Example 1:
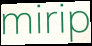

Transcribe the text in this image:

mirip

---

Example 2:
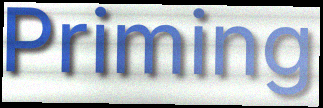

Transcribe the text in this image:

Priming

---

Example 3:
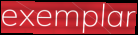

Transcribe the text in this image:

exemplar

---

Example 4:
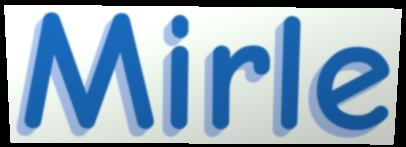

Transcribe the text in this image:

Mirle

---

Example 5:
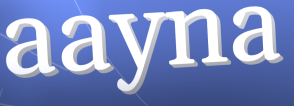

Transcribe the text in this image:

aayna